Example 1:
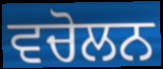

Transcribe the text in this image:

ਵਚੋਲਨ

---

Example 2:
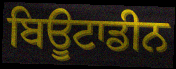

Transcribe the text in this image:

ਬਿਊਟਾਡੀਨ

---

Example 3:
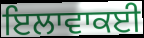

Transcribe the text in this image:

ਇਲਾਵਾਕਈ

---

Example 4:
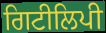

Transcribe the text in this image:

ਗਿਟੀਲਿਪੀ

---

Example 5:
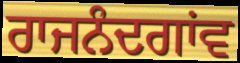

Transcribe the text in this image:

ਰਾਜਨੰਦਗਾਂਵ